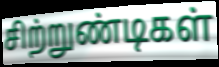
சிற்றுண்டிகள்